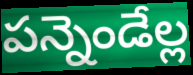
పన్నెండేల్ల